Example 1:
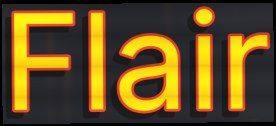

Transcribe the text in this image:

Flair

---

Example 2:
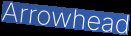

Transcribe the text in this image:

Arrowhead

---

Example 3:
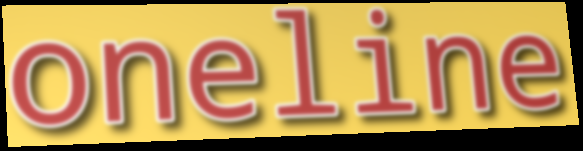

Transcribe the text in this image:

oneline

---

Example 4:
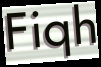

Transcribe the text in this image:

Fiqh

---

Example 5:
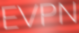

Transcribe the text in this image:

EVPN